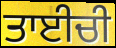
ਤਾਈਚੀ